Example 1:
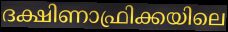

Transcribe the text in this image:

ദക്ഷിണാഫ്രിക്കയിലെ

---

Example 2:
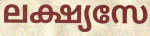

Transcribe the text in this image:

ലക്ഷ്യസേ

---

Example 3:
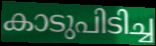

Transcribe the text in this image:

കാടുപിടിച്ച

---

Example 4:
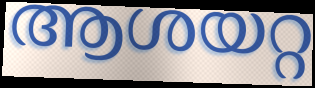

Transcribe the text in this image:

ആശയറ്റ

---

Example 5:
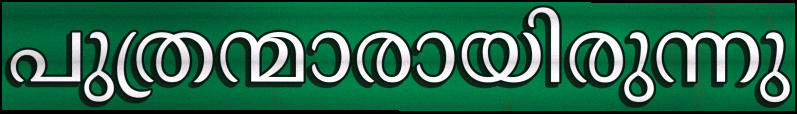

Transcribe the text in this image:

പുത്രന്മാരായിരുന്നു